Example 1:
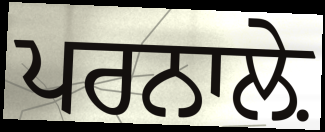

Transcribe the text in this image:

ਪਰਨਾਲ਼ੇ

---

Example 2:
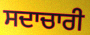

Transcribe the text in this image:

ਸਦਾਚਾਰੀ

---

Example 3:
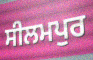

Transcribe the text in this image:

ਸੀਲਮਪੁਰ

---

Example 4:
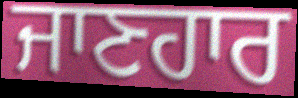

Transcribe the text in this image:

ਜਾਣਹਾਰ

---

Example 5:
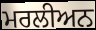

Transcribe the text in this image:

ਮਰਲੀਅਨ